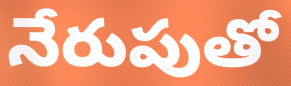
నేరుపుతో